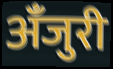
अँजुरी